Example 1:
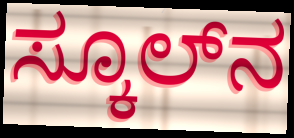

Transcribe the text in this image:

ಸ್ಕೂಲ್‌ನ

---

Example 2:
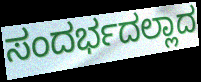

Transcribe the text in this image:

ಸಂದರ್ಭದಲ್ಲಾದ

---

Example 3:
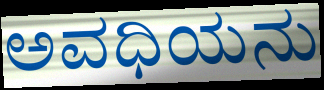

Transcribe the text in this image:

ಅವಧಿಯನು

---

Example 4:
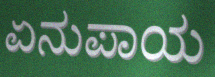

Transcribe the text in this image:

ಏನುಪಾಯ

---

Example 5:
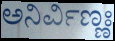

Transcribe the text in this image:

ಅನಿರ್ವಿಣ್ಣಃ